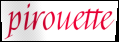
pirouette